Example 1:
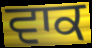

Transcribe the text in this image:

ਵਾਕ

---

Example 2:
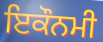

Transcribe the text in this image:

ਇਕੌਨਮੀ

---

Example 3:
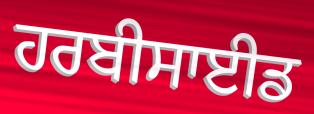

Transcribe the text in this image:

ਹਰਬੀਸਾਈਡ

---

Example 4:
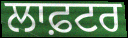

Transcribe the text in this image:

ਲਾਫ਼ਟਰ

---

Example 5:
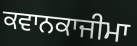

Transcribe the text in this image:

ਕਵਾਨਕਾਜੀਮਾ